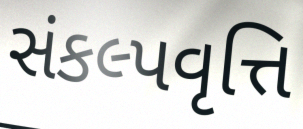
સંકલ્પવૃત્તિ